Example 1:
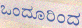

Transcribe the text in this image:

ಒಂದೂರಿಂದ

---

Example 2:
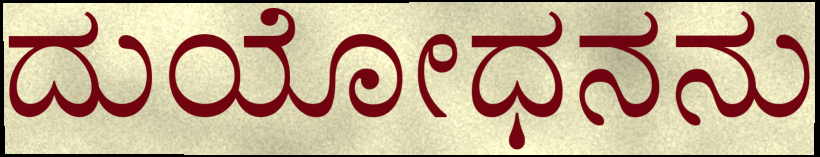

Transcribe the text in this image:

ದುಯೋಧನನು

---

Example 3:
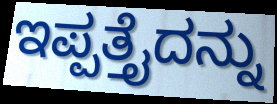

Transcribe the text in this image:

ಇಪ್ಪತ್ತೈದನ್ನು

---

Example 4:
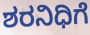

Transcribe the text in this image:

ಶರನಿಧಿಗೆ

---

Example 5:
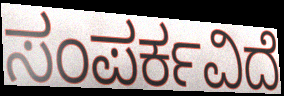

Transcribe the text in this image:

ಸಂಪರ್ಕವಿದೆ